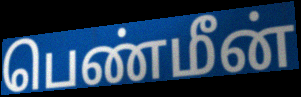
பெண்மீன்